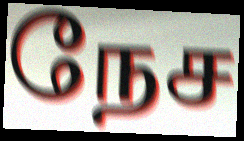
நேச